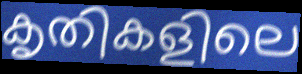
കൃതികളിലെ